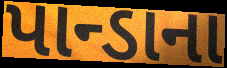
પાન્ડાના